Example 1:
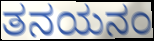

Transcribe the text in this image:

ತನಯನಂ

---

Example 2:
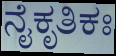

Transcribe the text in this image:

ನೈಕೃತಿಕಃ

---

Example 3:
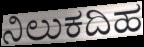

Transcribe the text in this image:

ನಿಲುಕದಿಹ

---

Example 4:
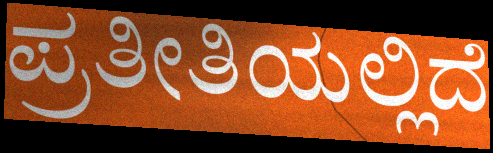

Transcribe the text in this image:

ಪ್ರತೀತಿಯಲ್ಲಿದೆ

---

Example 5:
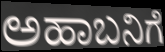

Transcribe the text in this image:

ಅಹಾಬನಿಗೆ